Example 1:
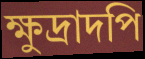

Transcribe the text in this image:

ক্ষুদ্রাদপি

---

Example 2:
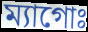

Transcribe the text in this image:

ম্যাগোঃ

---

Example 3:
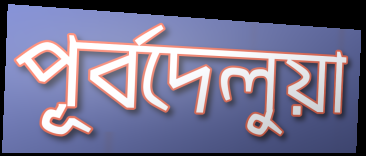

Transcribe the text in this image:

পূর্বদেলুয়া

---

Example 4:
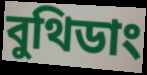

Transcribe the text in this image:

বুথিডাং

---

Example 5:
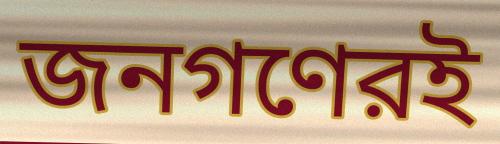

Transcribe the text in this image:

জনগণেরই